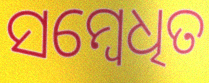
ସମ୍ବେଧିତ